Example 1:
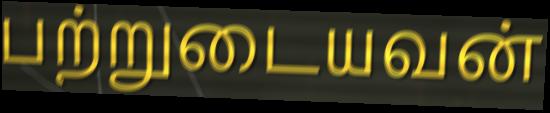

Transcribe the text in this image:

பற்றுடையவன்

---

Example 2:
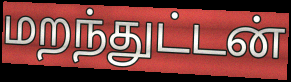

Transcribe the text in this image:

மறந்துட்டன்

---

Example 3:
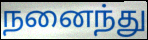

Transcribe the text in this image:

நனைந்து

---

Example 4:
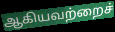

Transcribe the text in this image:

ஆகியவற்றைச்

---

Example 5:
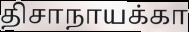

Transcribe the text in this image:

திசாநாயக்கா